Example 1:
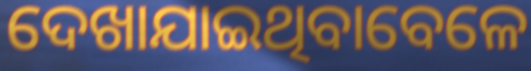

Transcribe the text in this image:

ଦେଖାଯାଇଥିବାବେଳେ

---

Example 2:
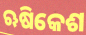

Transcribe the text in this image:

ଋଷିକେଶ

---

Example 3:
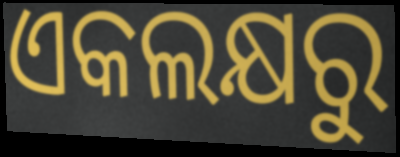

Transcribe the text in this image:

ଏକଲକ୍ଷରୁ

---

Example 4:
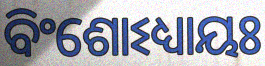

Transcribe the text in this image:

ବିଂଶୋଽଧ୍ୟାୟଃ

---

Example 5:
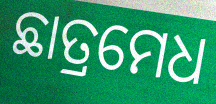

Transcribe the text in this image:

ଛାତ୍ରମେଧ